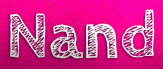
Nand